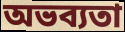
অভব্যতা